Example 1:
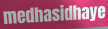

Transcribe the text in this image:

medhasidhaye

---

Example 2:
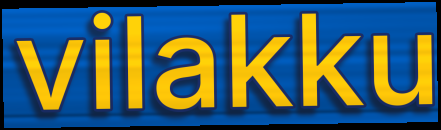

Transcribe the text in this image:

vilakku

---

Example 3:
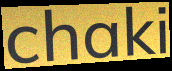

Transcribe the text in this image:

chaki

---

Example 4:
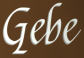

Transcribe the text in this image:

Gebe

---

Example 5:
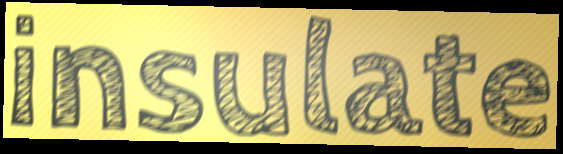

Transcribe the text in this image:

insulate